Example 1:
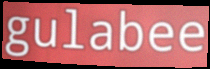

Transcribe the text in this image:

gulabee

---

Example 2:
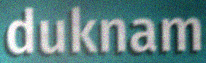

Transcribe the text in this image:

duknam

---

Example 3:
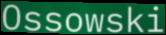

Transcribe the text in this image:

Ossowski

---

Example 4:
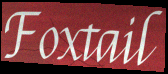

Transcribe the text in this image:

Foxtail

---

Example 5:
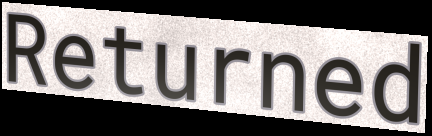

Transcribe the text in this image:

Returned